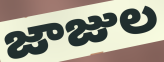
జాజుల